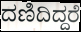
ದಣಿದಿದ್ದರೆ